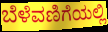
ಬೆಳೆವಣಿಗೆಯಲ್ಲಿ